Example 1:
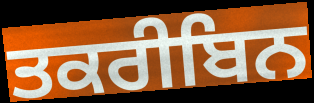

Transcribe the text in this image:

ਤਕਰੀਬਿਨ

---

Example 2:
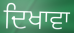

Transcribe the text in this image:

ਦਿਖਾਵਾ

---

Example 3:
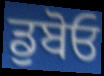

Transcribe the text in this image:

ਡੁਬੋਓ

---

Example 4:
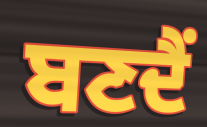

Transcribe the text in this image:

ਬਣਦੈਂ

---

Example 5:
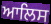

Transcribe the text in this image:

ਆਲਿਸ